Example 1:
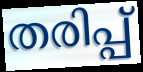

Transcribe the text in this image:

തരിപ്പ്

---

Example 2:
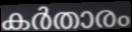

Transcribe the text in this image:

കർതാരം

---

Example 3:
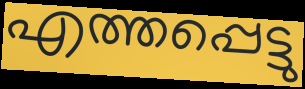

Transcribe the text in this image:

എത്തപ്പെട്ടു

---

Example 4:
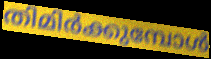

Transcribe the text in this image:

തിമിർക്കുമ്പോൾ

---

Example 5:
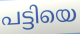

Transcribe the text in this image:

പട്ടിയെ